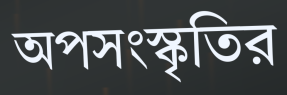
অপসংস্কৃতির